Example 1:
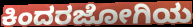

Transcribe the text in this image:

ಕಿಂದರಜೋಗಿಯ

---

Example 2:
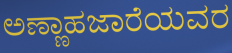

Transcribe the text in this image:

ಅಣ್ಣಾಹಜಾರೆಯವರ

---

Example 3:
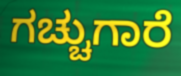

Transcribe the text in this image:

ಗಚ್ಚುಗಾರೆ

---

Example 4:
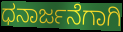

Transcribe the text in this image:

ಧನಾರ್ಜನೆಗಾಗಿ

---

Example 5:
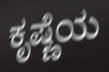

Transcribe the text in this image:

ಕೃಷ್ಣೆಯ